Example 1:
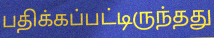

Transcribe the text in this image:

பதிக்கப்பட்டிருந்தது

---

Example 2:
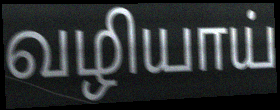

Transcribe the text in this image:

வழியாய்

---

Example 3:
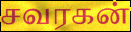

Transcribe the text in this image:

சவரகன்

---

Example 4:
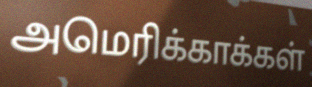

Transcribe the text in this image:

அமெரிக்காக்கள்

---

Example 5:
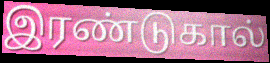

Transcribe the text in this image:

இரண்டுகால்